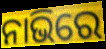
ନାଭିରେ